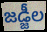
జడ్జీల